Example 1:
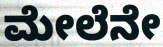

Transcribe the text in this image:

ಮೇಲೆನೇ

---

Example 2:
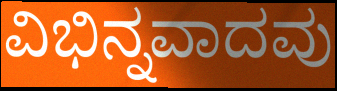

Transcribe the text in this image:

ವಿಭಿನ್ನವಾದವು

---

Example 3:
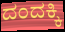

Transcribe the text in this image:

ದಂದಕ್ಕಿ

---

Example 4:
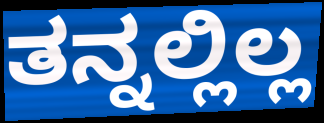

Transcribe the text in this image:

ತನ್ನಲ್ಲಿಲ್ಲ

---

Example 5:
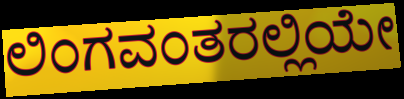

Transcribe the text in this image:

ಲಿಂಗವಂತರಲ್ಲಿಯೇ